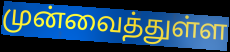
முன்வைத்துள்ள